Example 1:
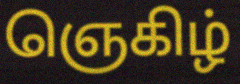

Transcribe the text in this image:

ஞெகிழ்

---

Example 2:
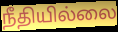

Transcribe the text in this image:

நீதியில்லை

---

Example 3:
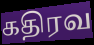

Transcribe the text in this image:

கதிரவ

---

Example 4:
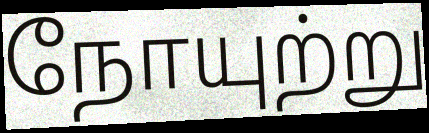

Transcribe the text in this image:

நோயுற்று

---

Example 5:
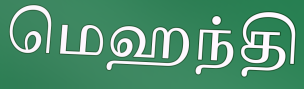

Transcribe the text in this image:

மெஹந்தி